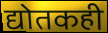
द्योतकही